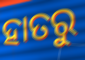
ହାତରୁ